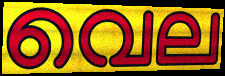
വെല